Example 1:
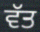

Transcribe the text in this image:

ਵੱਤ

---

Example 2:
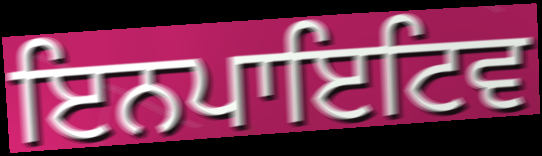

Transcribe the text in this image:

ਇਨਪਾਇਟਿਵ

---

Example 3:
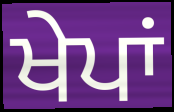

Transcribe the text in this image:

ਖੇਪਾਂ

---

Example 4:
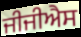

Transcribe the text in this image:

ਜੀਜੀਐਸ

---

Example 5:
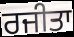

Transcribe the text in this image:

ਰਜੀਤਾ